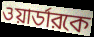
ওয়ার্ডারকে